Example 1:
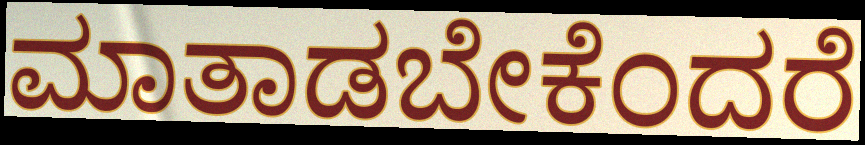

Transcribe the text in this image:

ಮಾತಾಡಬೇಕೆಂದರೆ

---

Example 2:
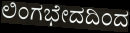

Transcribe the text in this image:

ಲಿಂಗಭೇದದಿಂದ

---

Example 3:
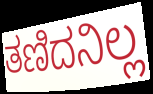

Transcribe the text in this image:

ತಣಿದನಿಲ್ಲ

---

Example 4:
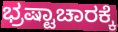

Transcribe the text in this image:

ಭ್ರಷ್ಟಾಚಾರಕ್ಕೆ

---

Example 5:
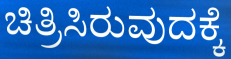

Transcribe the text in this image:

ಚಿತ್ರಿಸಿರುವುದಕ್ಕೆ